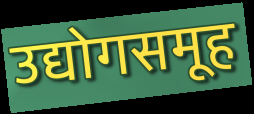
उद्योगसमूह